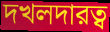
দখলদারত্ব